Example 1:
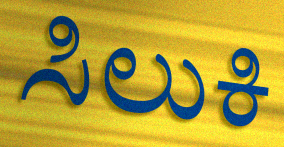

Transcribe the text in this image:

ಸಿಲುಕಿ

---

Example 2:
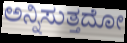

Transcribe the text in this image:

ಅನ್ನಿಸುತ್ತದೋ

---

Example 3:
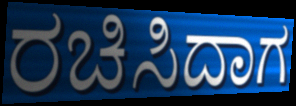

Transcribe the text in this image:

ರಚಿಸಿದಾಗ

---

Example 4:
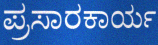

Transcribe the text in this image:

ಪ್ರಸಾರಕಾರ್ಯ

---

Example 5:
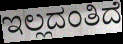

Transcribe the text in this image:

ಇಲ್ಲದಂತಿದೆ